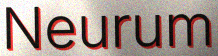
Neurum